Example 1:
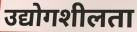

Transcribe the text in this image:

उद्योगशीलता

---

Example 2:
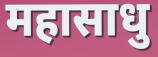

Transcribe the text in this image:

महासाधु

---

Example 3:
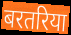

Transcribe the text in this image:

बरतरिया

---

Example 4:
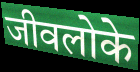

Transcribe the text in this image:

जीवलोके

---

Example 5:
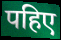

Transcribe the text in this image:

पहिए